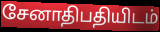
சேனாதிபதியிடம்